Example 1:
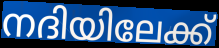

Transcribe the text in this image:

നദിയിലേക്ക്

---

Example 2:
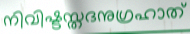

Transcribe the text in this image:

നിവിഷ്ടസ്തദനുഗ്രഹാത്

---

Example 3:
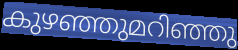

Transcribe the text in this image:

കുഴഞ്ഞുമറിഞ്ഞു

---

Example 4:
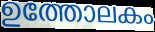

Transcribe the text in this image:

ഉത്തോലകം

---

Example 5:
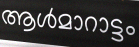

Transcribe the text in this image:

ആൾമാറാട്ടം